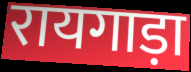
रायगाड़ा